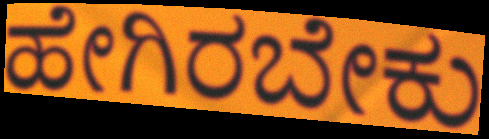
ಹೇಗಿರಬೇಕು